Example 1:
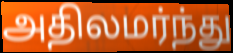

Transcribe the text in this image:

அதிலமர்ந்து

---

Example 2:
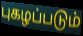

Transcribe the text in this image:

புகழப்படும்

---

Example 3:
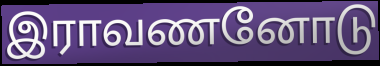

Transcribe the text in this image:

இராவணனோடு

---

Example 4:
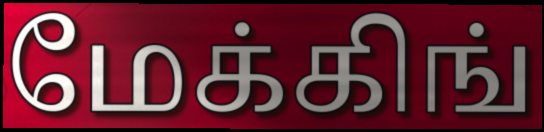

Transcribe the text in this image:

மேக்கிங்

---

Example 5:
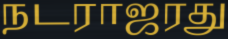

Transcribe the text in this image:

நடராஜரது